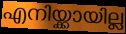
എനിയ്ക്കായില്ല